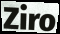
Ziro